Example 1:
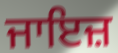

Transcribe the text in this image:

ਜਾਇਜ਼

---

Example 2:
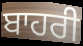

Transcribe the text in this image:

ਬਾਹਰੀ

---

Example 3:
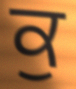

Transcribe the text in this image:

ਕੁ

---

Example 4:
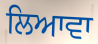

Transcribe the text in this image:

ਲਿਆਵਾ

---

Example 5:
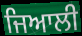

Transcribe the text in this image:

ਜਿਆਲੀ